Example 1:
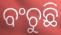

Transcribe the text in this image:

ବଂଚୁଛି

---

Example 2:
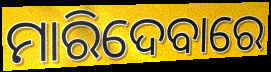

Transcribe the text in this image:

ମାରିଦେବାରେ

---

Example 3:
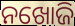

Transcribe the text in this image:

ନଖୋଜି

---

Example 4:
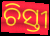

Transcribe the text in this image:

ଚିସ୍ତୀ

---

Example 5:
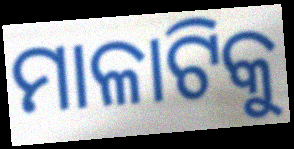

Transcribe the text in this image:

ମାଳାଟିକୁ